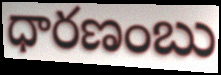
ధారణంబు